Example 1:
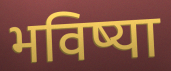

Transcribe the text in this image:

भविष्या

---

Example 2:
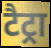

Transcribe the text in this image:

टैट्रा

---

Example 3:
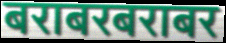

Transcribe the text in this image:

बराबरबराबर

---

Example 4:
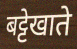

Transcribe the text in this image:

बट्टेखाते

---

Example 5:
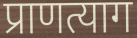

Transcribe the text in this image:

प्राणत्याग